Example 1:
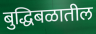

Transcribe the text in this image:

बुद्धिबळातील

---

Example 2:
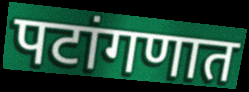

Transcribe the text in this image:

पटांगणात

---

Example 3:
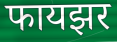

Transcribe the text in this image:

फायझर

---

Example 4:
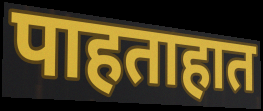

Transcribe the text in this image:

पाहताहात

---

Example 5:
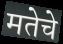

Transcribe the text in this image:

मतेचे